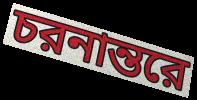
চরনান্তরে